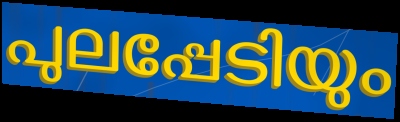
പുലപ്പേടിയും